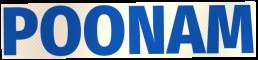
POONAM